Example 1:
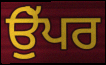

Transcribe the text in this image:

ਉੁੱਪਰ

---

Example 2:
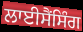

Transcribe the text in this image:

ਲਾਈਸੈਂਸਿੰਗ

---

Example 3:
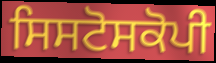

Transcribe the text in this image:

ਸਿਸਟੋਸਕੋਪੀ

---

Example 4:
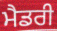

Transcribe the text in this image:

ਮੈਡਰੀ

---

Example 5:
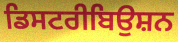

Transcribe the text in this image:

ਡਿਸਟਰੀਬਿਉਸ਼ਨ